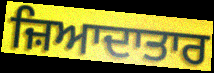
ਜ਼ਿਆਦਾਤਾਰ